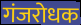
गंजरोधक